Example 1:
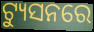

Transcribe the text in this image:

ଟ୍ୟୁସନରେ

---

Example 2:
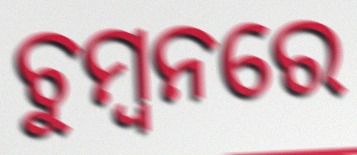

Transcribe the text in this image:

ଚୁମ୍ବନରେ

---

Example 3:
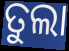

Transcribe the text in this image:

ତୁଲା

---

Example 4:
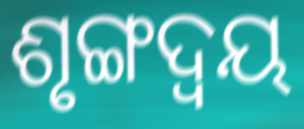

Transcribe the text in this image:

ଶୃଙ୍ଗଦ୍ୱୟ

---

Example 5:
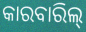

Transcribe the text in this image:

କାରବାରିଲ୍